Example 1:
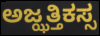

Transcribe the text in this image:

ಅಜ್ಝತ್ತಿಕಸ್ಸ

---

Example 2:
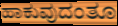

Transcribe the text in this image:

ಹಾಕುವುದಂತೂ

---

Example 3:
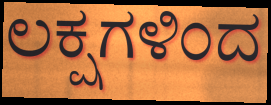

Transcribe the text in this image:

ಲಕ್ಷಗಳಿಂದ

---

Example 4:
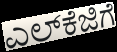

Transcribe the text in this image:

ಎಲ್‌ಕೆಜಿಗೆ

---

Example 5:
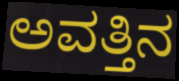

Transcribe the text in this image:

ಅವತ್ತಿನ